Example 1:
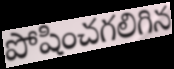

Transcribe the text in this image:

పోషించగలిగిన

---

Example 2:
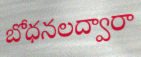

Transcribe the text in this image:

బోధనలద్వారా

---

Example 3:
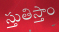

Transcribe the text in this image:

స్తుతిస్తాం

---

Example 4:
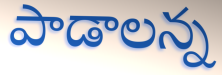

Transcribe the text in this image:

పాడాలన్న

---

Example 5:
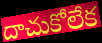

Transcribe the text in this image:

దాచుకోలేక